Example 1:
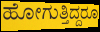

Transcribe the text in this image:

ಹೋಗುತ್ತಿದ್ದರೂ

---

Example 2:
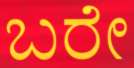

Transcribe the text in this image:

ಬರೇ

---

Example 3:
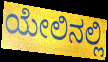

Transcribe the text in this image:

ಯೇಲಿನಲ್ಲಿ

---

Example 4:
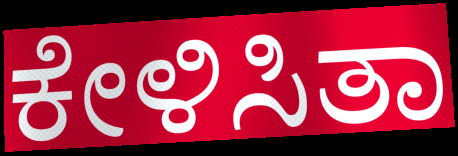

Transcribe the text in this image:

ಕೇಳಿಸಿತಾ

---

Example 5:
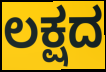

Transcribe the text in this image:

ಲಕ್ಷದ